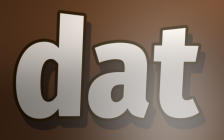
dat